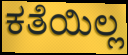
ಕತೆಯಿಲ್ಲ